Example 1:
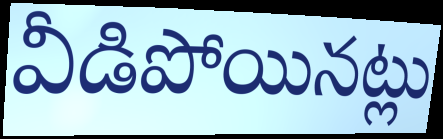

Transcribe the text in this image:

వీడిపోయినట్లు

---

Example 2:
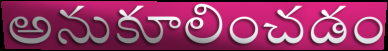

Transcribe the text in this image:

అనుకూలించడం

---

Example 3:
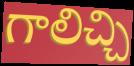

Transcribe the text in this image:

గాలిచ్చి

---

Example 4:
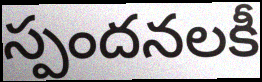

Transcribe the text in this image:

స్పందనలకీ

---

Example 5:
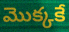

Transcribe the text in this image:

మొక్కకే